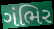
ગંભિર